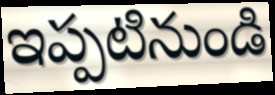
ఇప్పటినుండి